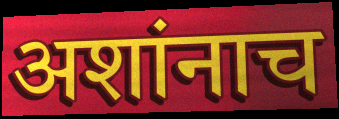
अशांनाच